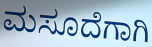
ಮಸೂದೆಗಾಗಿ